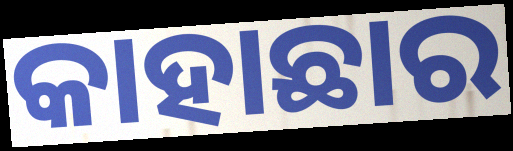
କାହାଛାର